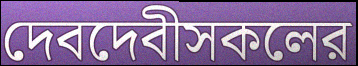
দেবদেবীসকলের